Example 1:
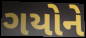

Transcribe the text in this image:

ગયોને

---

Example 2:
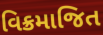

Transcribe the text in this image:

વિક્રમાજિત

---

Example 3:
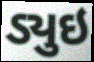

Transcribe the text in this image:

ડ્યુઇ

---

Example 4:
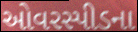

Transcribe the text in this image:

ઓવરસ્પીડના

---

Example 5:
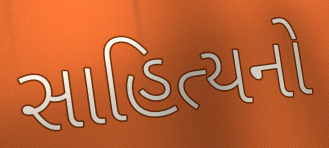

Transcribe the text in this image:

સાહિત્યનો